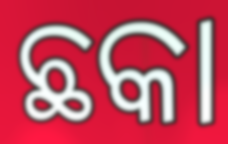
ଛକା